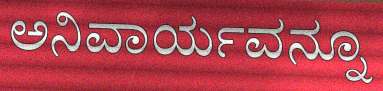
ಅನಿವಾರ್ಯವನ್ನೂ